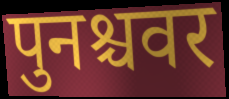
पुनश्चवर